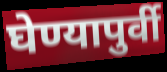
घेण्यापुर्वी